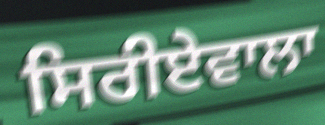
ਸਿਰੀਏਵਾਲਾ